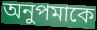
অনুপমাকে